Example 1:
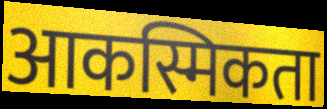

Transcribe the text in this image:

आकस्मिकता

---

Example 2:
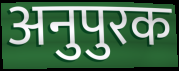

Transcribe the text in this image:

अनुपुरक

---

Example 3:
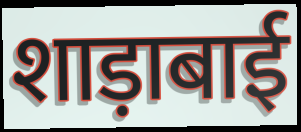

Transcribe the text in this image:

शाड़ाबाई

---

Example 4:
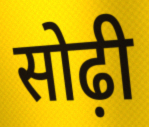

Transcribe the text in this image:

सोढ़ी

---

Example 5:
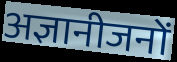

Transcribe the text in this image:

अज्ञानीजनों